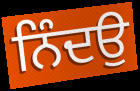
ਨਿੰਦਉ